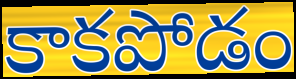
కాకపోడం